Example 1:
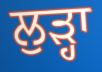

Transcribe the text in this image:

ਲੁੜ੍ਹਾ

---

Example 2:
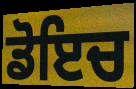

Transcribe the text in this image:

ਡੋਇਚ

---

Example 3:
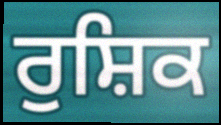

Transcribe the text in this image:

ਰੁਸ਼ਿਕ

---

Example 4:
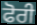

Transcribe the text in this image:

ਫੋਰੀ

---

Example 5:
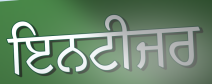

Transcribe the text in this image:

ਇਨਟੀਜਰ